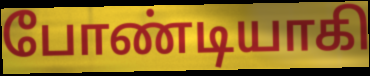
போண்டியாகி